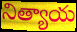
నిత్యాయ